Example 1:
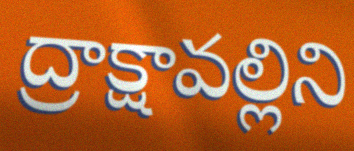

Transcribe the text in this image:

ద్రాక్షావల్లిని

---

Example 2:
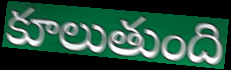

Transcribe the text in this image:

కూలుతుంది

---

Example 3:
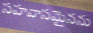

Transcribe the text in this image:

సహవాసమైనను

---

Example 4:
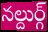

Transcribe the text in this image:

నల్దుర్గ్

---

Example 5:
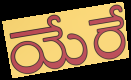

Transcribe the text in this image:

యేరే